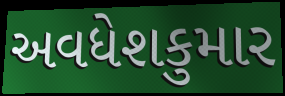
અવધેશકુમાર